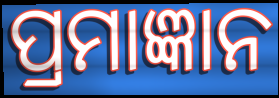
ପ୍ରମାଜ୍ଞାନ